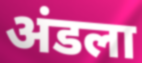
अंडला